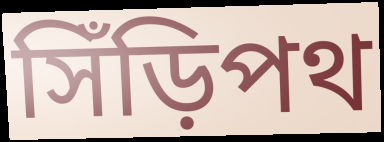
সিঁড়িপথ